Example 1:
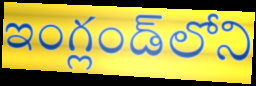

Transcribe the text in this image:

ఇంగ్లండ్‌లోని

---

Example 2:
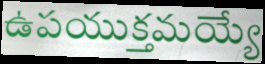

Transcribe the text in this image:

ఉపయుక్తమయ్యే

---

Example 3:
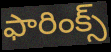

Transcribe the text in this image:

ఫారింక్స్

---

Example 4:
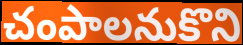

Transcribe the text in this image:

చంపాలనుకొని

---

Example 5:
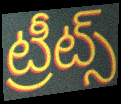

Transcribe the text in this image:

ట్రీట్స్